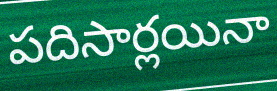
పదిసార్లయినా